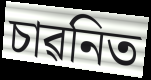
চাৱনিত